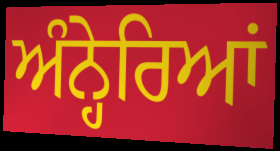
ਅੰਨ੍ਹੇਰਿਆਂ